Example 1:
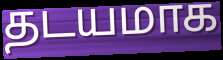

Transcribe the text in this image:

தடயமாக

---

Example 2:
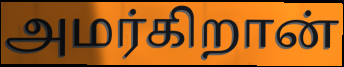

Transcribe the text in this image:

அமர்கிறான்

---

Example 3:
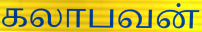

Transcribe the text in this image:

கலாபவன்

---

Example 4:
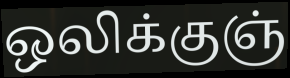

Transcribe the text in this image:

ஒலிக்குஞ்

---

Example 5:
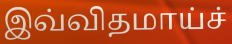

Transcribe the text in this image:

இவ்விதமாய்ச்